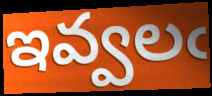
ఇవ్వలఁ